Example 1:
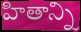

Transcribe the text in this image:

హితాన్ని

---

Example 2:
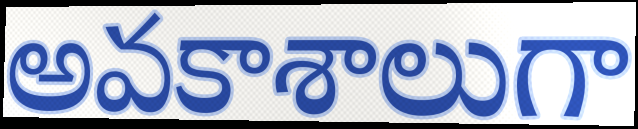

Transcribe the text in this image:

అవకాశాలుగా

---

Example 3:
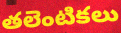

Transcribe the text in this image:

తలెంటికలు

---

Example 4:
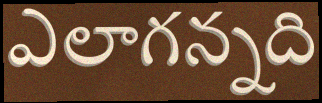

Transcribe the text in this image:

ఎలాగన్నది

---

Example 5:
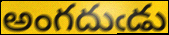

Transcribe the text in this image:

అంగదుఁడు